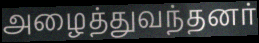
அழைத்துவந்தனர்